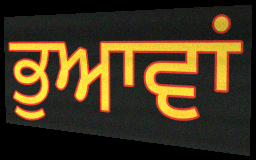
ਭੁਆਵਾਂ